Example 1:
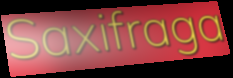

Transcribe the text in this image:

Saxifraga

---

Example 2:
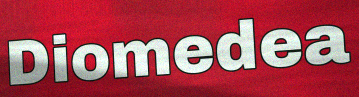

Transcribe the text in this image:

Diomedea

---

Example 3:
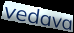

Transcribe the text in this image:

vedava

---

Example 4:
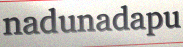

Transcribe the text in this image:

nadunadapu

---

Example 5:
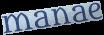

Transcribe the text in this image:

manae